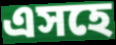
এসহে